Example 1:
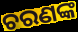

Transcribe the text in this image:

ଚରଣଙ୍କ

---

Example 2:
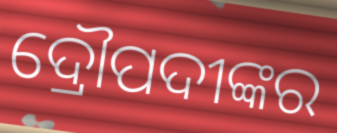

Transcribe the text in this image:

ଦ୍ରୌପଦୀଙ୍କର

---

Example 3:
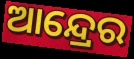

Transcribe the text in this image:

ଆନ୍ଦ୍ରେର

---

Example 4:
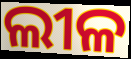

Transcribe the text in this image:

ଲୀଳ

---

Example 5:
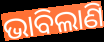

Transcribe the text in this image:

ଭାବିଲାଣି